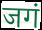
जगं